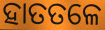
ହାତତଳେ